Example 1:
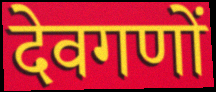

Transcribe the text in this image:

देवगणों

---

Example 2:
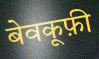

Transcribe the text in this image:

बेवकूफ़ी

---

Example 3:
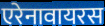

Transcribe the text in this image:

एरेनावायरस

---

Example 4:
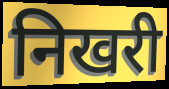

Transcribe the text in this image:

निखरी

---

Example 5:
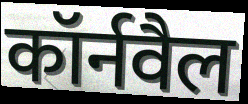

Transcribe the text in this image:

कॉर्नवैल